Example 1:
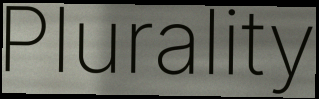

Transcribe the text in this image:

Plurality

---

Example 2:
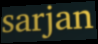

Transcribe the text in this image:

sarjan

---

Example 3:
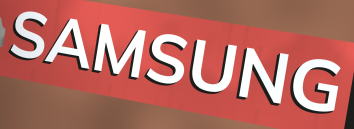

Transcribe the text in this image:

SAMSUNG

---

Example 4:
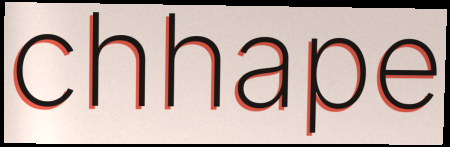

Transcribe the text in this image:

chhape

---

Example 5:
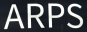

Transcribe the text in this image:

ARPS